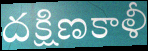
దక్షిణకాళీ